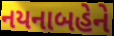
નયનાબહેને